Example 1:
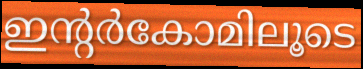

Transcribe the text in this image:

ഇന്റർകോമിലൂടെ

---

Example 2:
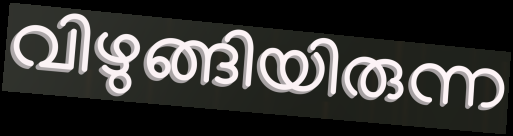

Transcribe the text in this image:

വിഴുങ്ങിയിരുന്ന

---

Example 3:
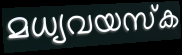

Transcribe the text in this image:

മധ്യവയസ്ക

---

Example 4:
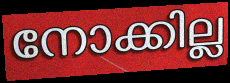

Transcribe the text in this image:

നോക്കില്ല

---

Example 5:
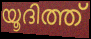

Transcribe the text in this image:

യൂദിത്ത്